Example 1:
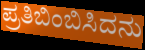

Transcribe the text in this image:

ಪ್ರತಿಬಿಂಬಿಸಿದನು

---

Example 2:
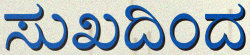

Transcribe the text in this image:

ಸುಖದಿಂದ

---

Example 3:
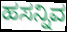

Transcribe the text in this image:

ಹಸನ್ನಿವ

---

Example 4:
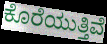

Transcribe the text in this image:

ಕೊರೆಯುತ್ತಿವೆ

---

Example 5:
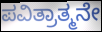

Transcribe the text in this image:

ಪವಿತ್ರಾತ್ಮನೇ